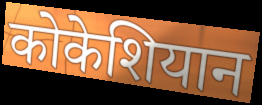
कोकेशियान